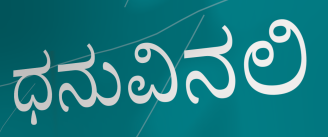
ಧನುವಿನಲಿ